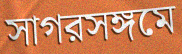
সাগরসঙ্গমে